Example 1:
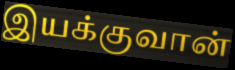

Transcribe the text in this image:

இயக்குவான்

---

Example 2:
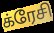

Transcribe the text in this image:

க்ரேசி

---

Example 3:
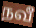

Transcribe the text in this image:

நவீ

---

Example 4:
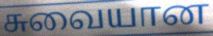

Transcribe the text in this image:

சுவையான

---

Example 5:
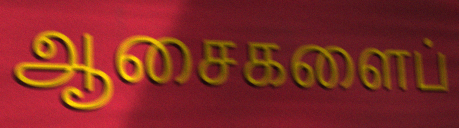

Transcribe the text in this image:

ஆசைகளைப்